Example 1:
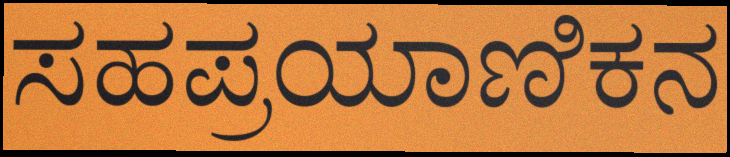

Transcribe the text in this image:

ಸಹಪ್ರಯಾಣಿಕನ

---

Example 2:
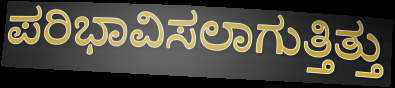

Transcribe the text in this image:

ಪರಿಭಾವಿಸಲಾಗುತ್ತಿತ್ತು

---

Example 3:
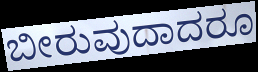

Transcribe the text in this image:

ಬೀರುವುದಾದರೂ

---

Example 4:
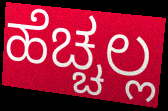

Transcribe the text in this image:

ಹೆಚ್ಚಲ್ಲ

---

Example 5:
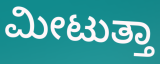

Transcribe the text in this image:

ಮೀಟುತ್ತಾ